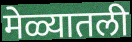
मेळ्यातली